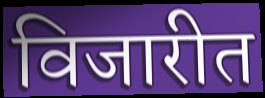
विजारीत